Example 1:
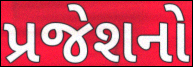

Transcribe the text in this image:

પ્રજેશનો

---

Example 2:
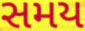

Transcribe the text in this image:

સમય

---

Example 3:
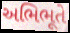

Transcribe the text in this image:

અભિભૂતે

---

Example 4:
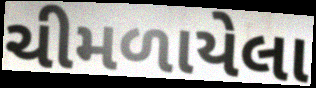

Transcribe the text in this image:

ચીમળાયેલા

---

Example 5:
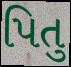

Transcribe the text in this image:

પિતુ